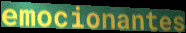
emocionantes